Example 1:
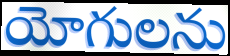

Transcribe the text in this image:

యోగులను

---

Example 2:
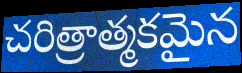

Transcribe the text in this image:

చరిత్రాత్మకమైన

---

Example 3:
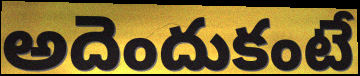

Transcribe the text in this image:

అదెందుకంటే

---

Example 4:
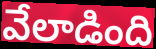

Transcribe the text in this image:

వేలాడింది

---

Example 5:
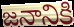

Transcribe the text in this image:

జనానికి